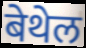
बेथेल